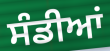
ਸੰਡੀਆਂ